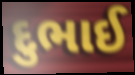
દુભાઈ